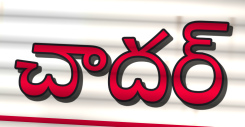
చాదర్